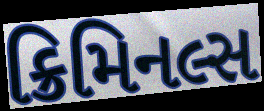
ક્રિમિનલ્સ